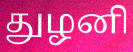
துழனி